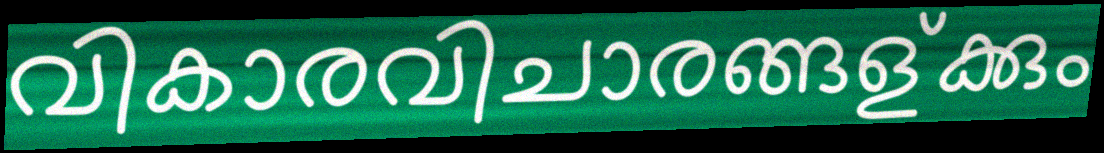
വികാരവിചാരങ്ങള്ക്കും